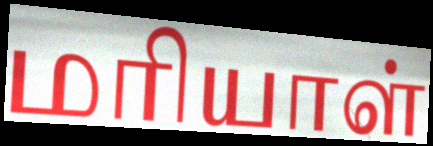
மரியாள்